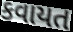
કવાયત